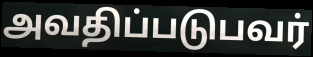
அவதிப்படுபவர்